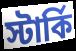
স্টার্কি